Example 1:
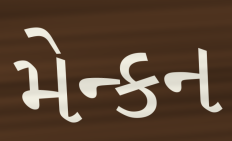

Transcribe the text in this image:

મેન્કન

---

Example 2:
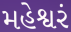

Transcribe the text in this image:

મહેશ્વરં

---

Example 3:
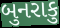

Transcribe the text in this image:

બુનરાકુ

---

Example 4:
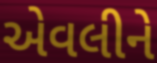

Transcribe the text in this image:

એવલીને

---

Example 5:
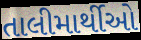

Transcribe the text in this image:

તાલીમાર્થીઓ